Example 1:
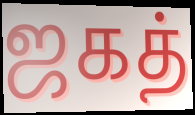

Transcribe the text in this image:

ஜகத்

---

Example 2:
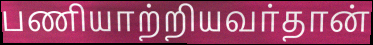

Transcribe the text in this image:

பணியாற்றியவர்தான்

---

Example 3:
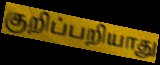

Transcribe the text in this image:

குறிப்பறியாது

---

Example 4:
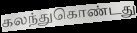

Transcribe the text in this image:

கலந்துகொண்டது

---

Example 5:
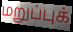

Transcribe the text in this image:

மறுப்புக்